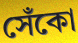
সেঁকো